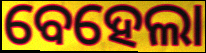
ବେହେଲା